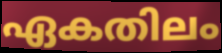
ഏകതിലം